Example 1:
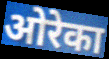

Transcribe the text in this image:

ओरेका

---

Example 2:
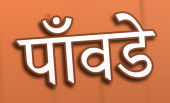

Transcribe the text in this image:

पाँवडे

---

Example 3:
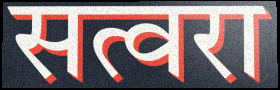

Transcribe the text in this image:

सत्वरा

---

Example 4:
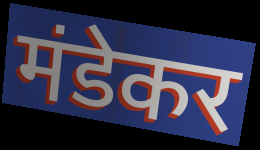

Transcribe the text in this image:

मंडेकर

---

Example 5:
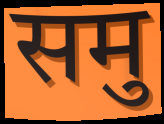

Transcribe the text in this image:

समु